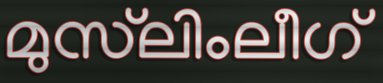
മുസ്‌ലിംലീഗ്